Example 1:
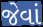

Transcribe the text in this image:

જેવાં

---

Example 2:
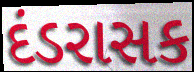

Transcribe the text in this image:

દંડરાસક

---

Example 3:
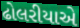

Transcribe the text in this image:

ઢોલરીયાએ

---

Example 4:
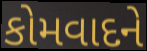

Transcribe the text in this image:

કોમવાદને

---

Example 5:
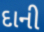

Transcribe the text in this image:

દાની